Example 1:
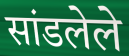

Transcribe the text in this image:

सांडलेले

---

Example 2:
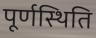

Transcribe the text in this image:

पूर्णस्थिति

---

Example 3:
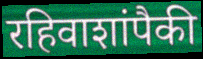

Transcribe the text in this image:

रहिवाशांपैकी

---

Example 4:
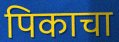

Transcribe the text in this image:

पिकाचा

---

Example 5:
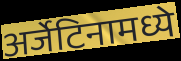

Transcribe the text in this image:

अर्जेटिनामध्ये